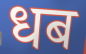
धब